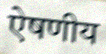
ऐषणीय